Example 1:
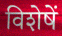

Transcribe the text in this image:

विशेषें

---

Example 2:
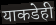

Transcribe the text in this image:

याकडेही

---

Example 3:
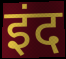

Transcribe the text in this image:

इंद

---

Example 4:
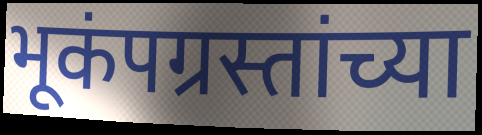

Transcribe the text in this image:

भूकंपग्रस्तांच्या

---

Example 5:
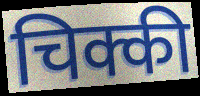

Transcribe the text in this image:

चिक्की